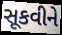
સૂકવીને